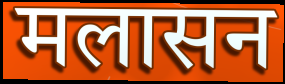
मलासन